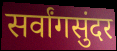
सर्वांगसुंदर